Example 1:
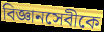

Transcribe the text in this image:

বিজ্ঞানসেবীকে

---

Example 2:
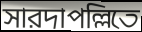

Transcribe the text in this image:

সারদাপল্লিতে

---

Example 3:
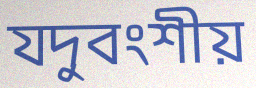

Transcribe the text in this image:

যদুবংশীয়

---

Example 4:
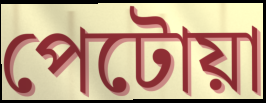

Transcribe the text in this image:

পেটোয়া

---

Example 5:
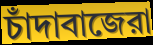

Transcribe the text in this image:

চাঁদাবাজেরা